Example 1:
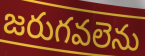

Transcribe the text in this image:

జరుగవలెను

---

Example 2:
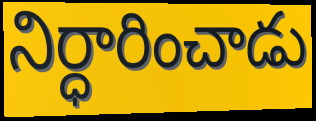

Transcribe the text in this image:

నిర్ధారించాడు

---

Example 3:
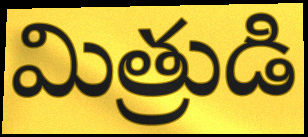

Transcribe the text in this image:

మిత్రుడి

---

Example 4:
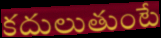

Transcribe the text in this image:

కదులుతుంటే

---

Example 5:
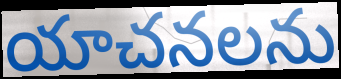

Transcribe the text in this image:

యాచనలను